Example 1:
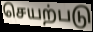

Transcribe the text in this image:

செயற்படு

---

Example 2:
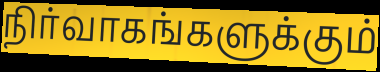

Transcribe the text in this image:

நிர்வாகங்களுக்கும்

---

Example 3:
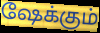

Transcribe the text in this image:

ஷேக்கும்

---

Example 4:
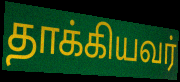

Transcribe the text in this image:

தாக்கியவர்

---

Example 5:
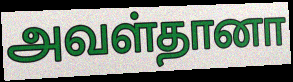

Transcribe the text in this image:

அவள்தானா